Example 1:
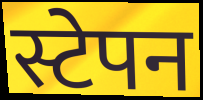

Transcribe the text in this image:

स्टेपन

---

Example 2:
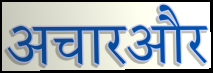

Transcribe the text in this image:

अचारऔर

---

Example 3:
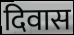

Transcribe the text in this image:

दिवास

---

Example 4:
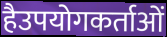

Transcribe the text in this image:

हैउपयोगकर्ताओं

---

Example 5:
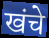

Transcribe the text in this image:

खंचे